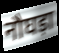
नौघड़ा